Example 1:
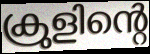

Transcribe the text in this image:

ക്രുളിന്റെ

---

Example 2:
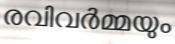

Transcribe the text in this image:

രവിവർമ്മയും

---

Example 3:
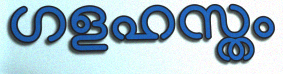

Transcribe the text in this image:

ഗളഹസ്തം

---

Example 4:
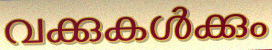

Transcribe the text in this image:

വക്കുകൾക്കും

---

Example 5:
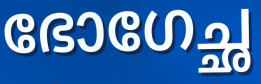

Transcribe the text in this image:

ഭോഗേച്ഛ